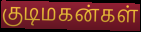
குடிமகன்கள்